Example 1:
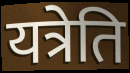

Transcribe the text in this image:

यत्रेति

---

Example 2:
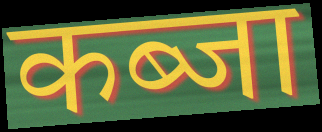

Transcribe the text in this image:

कब्जा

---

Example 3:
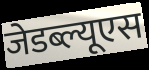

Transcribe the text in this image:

जेडब्ल्यूएस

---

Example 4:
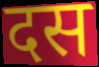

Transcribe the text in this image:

दस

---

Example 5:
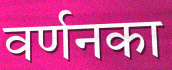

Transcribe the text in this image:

वर्णनका